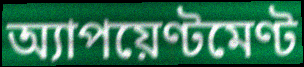
অ্যাপয়েণ্টমেণ্ট